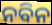
ନବିନ